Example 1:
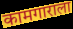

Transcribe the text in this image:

कामगाराला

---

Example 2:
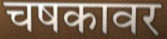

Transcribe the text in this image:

चषकावर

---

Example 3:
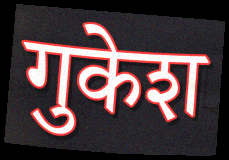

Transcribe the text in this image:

गुकेश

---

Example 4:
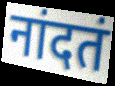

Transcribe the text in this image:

नांदतं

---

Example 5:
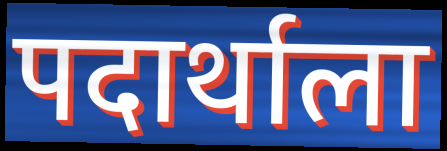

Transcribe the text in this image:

पदार्थाला